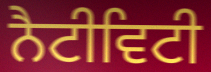
ਨੈਟੀਵਿਟੀ